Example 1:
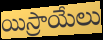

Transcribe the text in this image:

యిస్రాయేలు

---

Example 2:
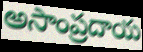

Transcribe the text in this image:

అసాంప్రదాయ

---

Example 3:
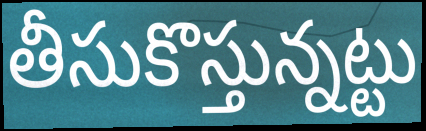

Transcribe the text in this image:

తీసుకొస్తున్నట్టు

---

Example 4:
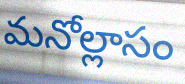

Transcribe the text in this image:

మనోల్లాసం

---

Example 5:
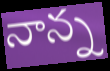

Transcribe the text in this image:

నాన్న